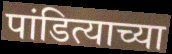
पांडित्याच्या